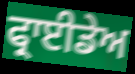
ਫ੍ਰਾਈਡੇਅ